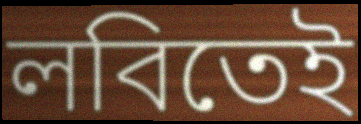
লবিতেই